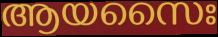
ആയസൈഃ